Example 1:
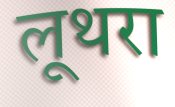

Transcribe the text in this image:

लूथरा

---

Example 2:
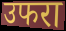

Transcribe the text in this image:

उफरा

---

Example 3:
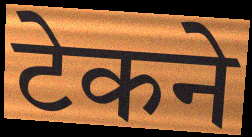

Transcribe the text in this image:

टेकने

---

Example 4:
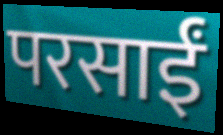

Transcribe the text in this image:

परसाईं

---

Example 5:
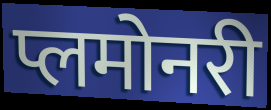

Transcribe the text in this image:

प्लमोनरी